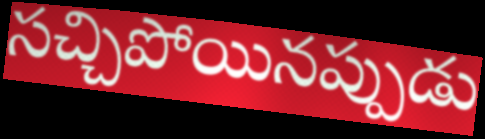
సచ్చిపోయినప్పుడు